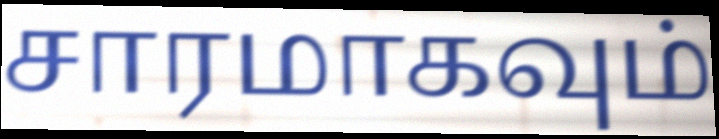
சாரமாகவும்